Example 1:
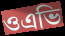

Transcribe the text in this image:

ওএভি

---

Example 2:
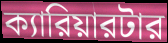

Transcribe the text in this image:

ক্যারিয়ারটার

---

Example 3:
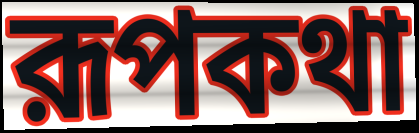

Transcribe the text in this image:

রূপকথা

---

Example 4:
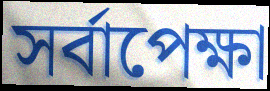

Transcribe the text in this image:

সর্বাপেক্ষা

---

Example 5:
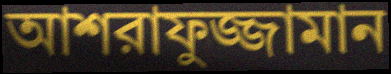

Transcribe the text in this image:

আশরাফুজ্জামান